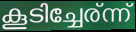
കൂടിച്ചേര്ന്ന്